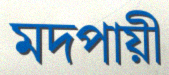
মদপায়ী